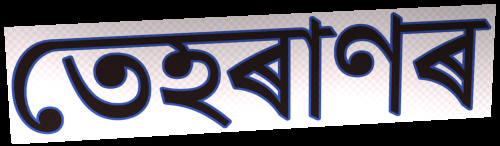
তেহৰাণৰ